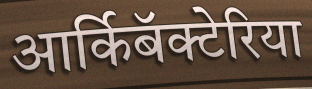
आर्किबॅक्टेरिया